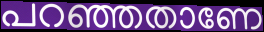
പറഞ്ഞതാണേ